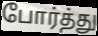
போர்த்து